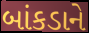
બાંકડાને